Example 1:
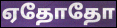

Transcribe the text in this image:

ஏதோதோ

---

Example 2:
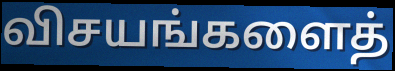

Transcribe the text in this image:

விசயங்களைத்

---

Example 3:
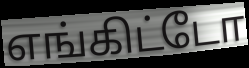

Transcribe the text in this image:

எங்கிட்டோ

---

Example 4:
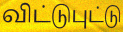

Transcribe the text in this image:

விட்டுபுட்டு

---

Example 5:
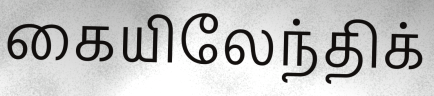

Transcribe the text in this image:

கையிலேந்திக்